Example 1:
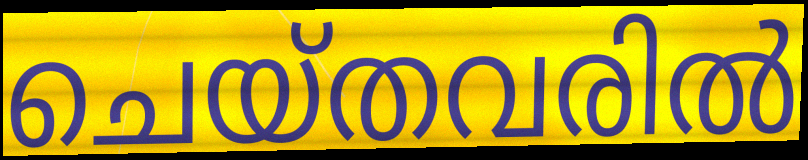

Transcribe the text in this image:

ചെയ്തവരിൽ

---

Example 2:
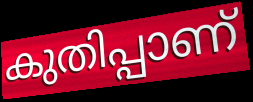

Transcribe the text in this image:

കുതിപ്പാണ്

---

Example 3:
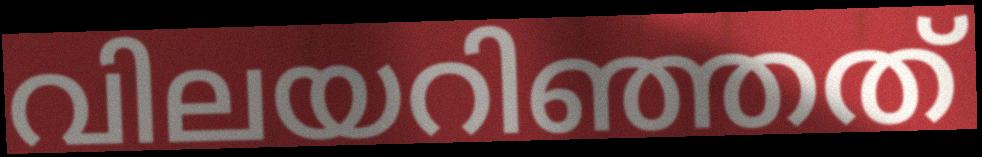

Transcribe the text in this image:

വിലയറിഞ്ഞത്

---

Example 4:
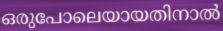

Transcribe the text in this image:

ഒരുപോലെയായതിനാൽ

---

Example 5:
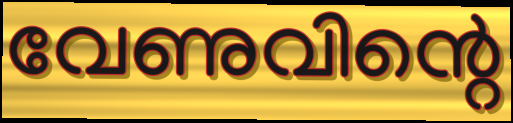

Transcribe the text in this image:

വേണുവിന്റെ